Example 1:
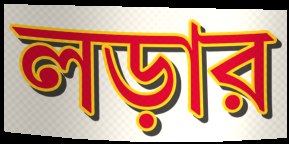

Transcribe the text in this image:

লড়ার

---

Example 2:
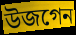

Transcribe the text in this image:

উজগেন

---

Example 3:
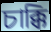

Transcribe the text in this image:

চাক্কি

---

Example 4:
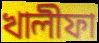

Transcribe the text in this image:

খালীফা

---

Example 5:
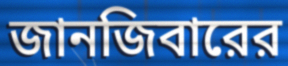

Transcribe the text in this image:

জানজিবারের